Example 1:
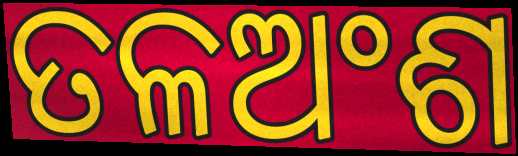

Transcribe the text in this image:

ତଳଅଂଶ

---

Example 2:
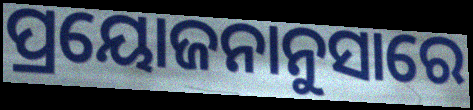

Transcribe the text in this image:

ପ୍ରୟୋଜନାନୁସାରେ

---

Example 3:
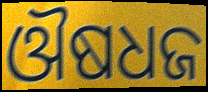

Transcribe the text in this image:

ଔଷଧଜ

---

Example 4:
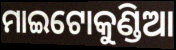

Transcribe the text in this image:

ମାଇଟୋକୁଣ୍ଡିଆ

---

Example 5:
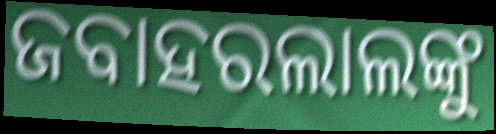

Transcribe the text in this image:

ଜବାହରଲାଲଙ୍କୁ